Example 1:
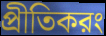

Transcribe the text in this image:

প্রীতিকরং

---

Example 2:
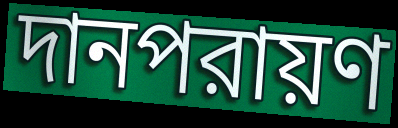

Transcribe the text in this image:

দানপরায়ণ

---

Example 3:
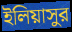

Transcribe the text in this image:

ইলিয়াসুর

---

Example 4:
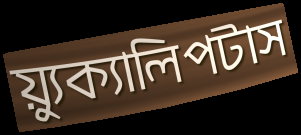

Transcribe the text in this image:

য়্যুক্যালিপটাস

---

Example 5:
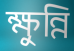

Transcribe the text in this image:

ক্ষুন্নি